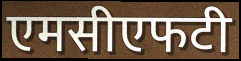
एमसीएफटी